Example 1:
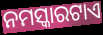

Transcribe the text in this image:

ନମସ୍କାରଟାଏ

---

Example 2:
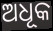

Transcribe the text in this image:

ଅଧୂକ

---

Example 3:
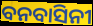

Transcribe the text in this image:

ବନବାସିନୀ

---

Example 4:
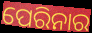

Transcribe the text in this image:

ପେରିନାର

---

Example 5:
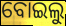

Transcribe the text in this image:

ବୋଇଲୁ